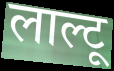
लाल्टू